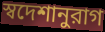
স্বদেশানুরাগ